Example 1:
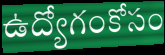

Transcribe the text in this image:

ఉద్యోగంకోసం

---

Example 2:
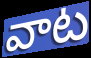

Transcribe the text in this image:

వాట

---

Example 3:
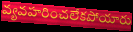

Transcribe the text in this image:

వ్యవహరించలేకపోయారు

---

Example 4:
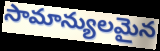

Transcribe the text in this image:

సామాన్యులమైన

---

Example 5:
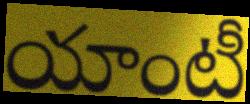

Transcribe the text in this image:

యాంటీ